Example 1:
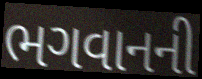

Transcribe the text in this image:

ભગવાનની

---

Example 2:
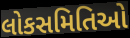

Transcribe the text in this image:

લોકસમિતિઓ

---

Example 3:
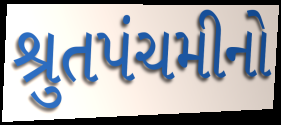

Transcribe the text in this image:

શ્રુતપંચમીનો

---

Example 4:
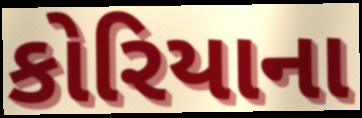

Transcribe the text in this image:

કોરિયાના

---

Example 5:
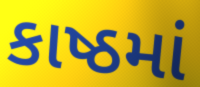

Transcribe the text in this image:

કાષ્ઠમાં